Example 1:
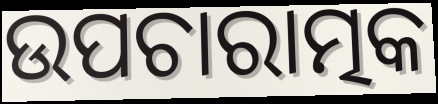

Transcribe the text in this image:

ଉପଚାରାତ୍ମକ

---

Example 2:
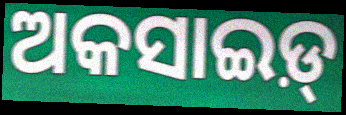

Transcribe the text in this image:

ଅକସାଇଡ଼୍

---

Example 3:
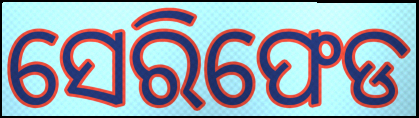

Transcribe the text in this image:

ସେରିଫେଡ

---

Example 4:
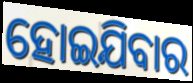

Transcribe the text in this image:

ହୋଇଯିବାର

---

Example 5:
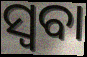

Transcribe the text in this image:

ସ୍ୱବା